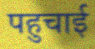
पहुचाई